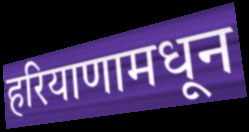
हरियाणामधून